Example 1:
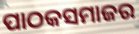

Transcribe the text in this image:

ପାଠକସମାଜର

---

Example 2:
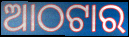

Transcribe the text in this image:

ଆଠଟାର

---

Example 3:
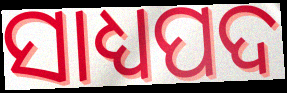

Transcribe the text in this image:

ସାଧ୍ଯପଦ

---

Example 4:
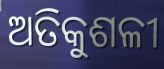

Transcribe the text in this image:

ଅତିକୁଶଳୀ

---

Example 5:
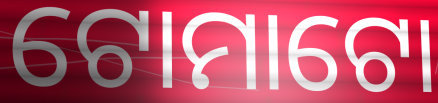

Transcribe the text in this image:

ଟୋମାଟୋ